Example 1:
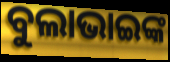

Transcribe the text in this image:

ବୁଲାଭାଇଙ୍କ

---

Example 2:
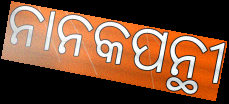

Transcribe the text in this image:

ନାନକପନ୍ଥୀ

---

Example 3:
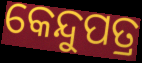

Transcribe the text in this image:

କେନ୍ଦୁପତ୍ର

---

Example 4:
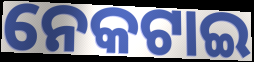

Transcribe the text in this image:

ନେକଟାଇ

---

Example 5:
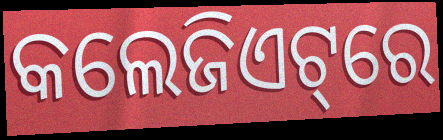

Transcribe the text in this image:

କଲେଜିଏଟ୍‌ରେ